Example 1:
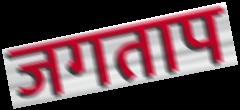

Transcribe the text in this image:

जगताप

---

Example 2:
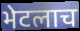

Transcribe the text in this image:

भेटलाच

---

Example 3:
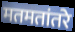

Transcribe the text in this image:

मतमतांतरे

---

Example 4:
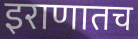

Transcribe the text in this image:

इराणातच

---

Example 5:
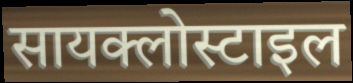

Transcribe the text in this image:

सायक्लोस्टाइल